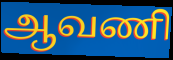
ஆவணி